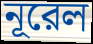
নূরেল